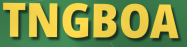
TNGBOA